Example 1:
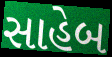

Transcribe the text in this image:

સાહેબ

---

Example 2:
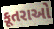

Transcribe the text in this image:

કૂતરાઓ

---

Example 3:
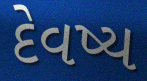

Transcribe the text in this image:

દેવષ્ય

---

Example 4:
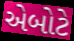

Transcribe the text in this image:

એબોટે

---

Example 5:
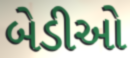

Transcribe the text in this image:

બેડીઓ